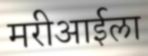
मरीआईला